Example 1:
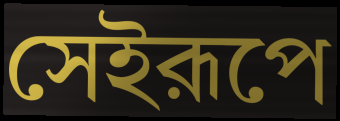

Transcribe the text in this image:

সেইরূপে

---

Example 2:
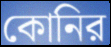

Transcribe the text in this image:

কোনির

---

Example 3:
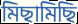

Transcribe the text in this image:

মিছামিছি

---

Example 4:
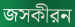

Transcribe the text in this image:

জসকীরন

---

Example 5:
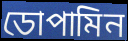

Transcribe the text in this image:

ডোপামিন